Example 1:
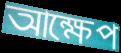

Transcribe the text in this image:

আক্ষেপ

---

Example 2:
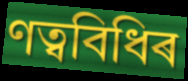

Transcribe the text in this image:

ণত্ববিধিৰ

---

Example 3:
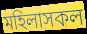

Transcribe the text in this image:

মহিলাসকল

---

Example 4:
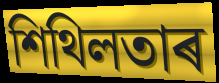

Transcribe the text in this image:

শিথিলতাৰ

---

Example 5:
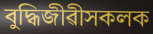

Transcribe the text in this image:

বুদ্ধিজীৱীসকলক